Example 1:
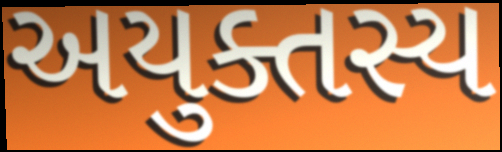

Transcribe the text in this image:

અયુક્તસ્ય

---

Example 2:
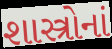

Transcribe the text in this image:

શાસ્ત્રોનાં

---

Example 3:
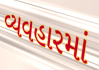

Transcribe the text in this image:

વ્યવહારમાં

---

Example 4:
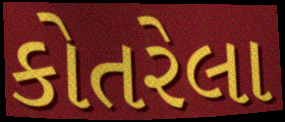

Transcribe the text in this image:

કોતરેલા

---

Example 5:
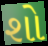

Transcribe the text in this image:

શો